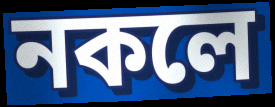
নকলে